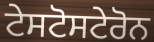
ਟੇਸਟੋਸਟੇਰੋਨ